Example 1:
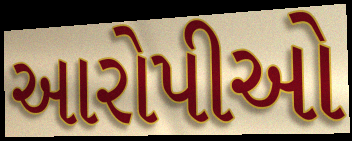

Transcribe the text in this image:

આરોપીઓ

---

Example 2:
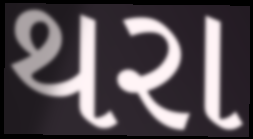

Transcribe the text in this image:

થરા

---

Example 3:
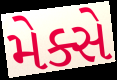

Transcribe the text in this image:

મેક્સે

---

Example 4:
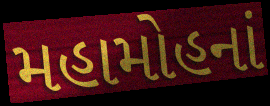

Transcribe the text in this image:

મહામોહનાં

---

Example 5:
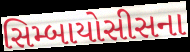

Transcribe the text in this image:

સિમ્બાયોસીસના